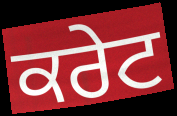
ਕਰੇਟ